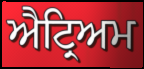
ਐਟ੍ਰਿਅਮ